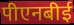
पीएनबीई